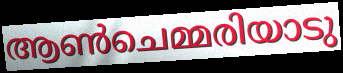
ആൺചെമ്മരിയാടു